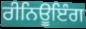
ਰੀਨਿਊਇੰਗ